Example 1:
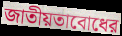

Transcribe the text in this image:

জাতীয়তাবোধের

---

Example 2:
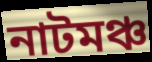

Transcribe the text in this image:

নাটমঞ্চ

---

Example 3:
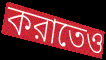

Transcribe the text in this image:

করাতেও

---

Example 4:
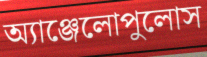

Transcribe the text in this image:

অ্যাঞ্জেলোপুলোস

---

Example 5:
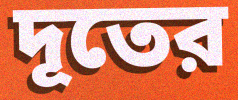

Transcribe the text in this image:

দূতের